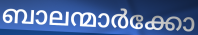
ബാലന്മാർക്കോ